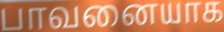
பாவனையாக